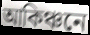
আকিঞ্চনে